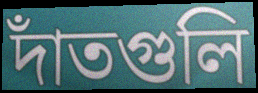
দাঁতগুলি